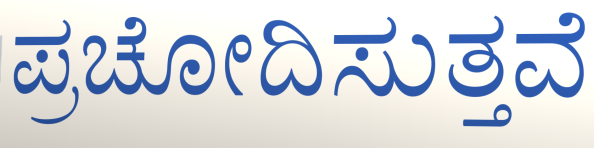
ಪ್ರಚೋದಿಸುತ್ತವೆ